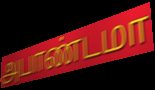
அபாண்டமா